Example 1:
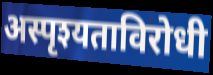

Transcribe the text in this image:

अस्पृश्यताविरोधी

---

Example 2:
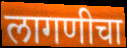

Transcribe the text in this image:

लागणीचा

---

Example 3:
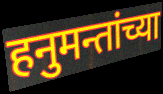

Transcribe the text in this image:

हनुमन्तांच्या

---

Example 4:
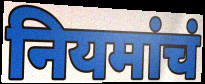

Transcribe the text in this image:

नियमांचं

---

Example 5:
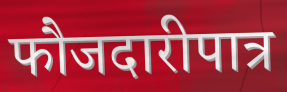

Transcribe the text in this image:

फौजदारीपात्र